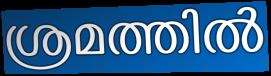
ശ്രമത്തിൽ